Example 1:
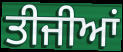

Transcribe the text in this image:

ਤੀਜੀਆਂ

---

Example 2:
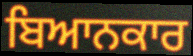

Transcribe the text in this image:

ਬਿਆਨਕਾਰ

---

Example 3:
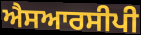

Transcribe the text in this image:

ਐਸਆਰਸੀਪੀ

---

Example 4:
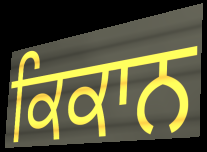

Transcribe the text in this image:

ਕਿਕਾਨ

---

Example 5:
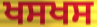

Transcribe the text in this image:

ਖਸਖਸ